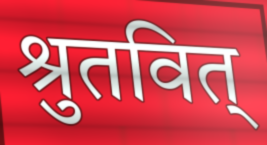
श्रुतवित्